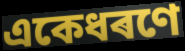
একেধৰণে